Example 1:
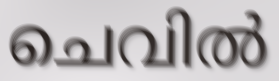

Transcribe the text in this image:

ചെവിൽ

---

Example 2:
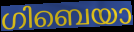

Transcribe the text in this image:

ഗിബെയാ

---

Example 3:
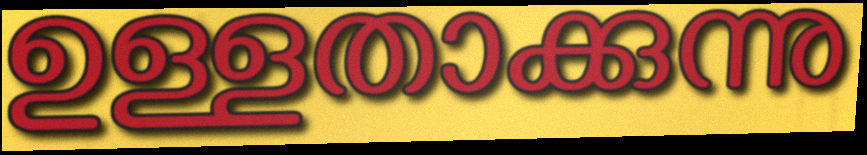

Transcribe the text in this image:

ഉള്ളതാക്കുന്നു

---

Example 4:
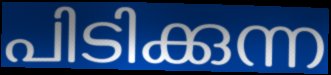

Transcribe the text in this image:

പിടിക്കുന്ന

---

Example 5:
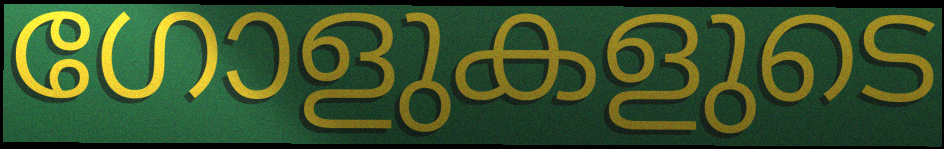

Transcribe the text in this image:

ഗോളുകളുടെ